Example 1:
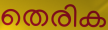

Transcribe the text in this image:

തെരിക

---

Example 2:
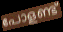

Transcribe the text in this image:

പോളണ്ട്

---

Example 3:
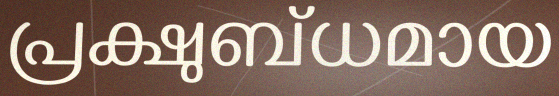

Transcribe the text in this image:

പ്രക്ഷുബ്ധമായ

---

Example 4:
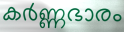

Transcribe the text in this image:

കർണ്ണഭാരം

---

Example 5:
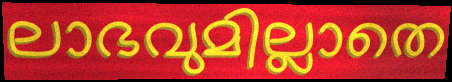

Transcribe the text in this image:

ലാഭവുമില്ലാതെ